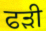
ਫੜੀ